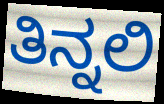
ತಿನ್ನಲಿ